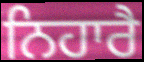
ਨਿਹਾਰੈ